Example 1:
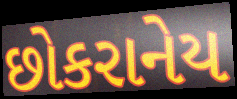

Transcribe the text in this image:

છોકરાનેય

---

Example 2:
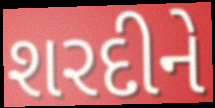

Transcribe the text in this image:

શરદીને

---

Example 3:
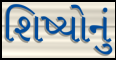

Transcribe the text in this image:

શિષ્યોનું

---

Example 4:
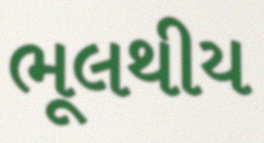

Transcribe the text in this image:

ભૂલથીય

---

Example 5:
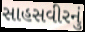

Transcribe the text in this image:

સાહસવીરનું